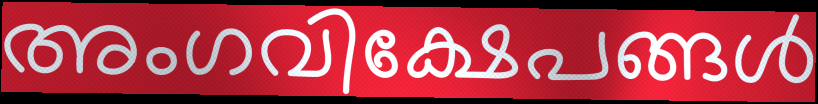
അംഗവിക്ഷേപങ്ങൾ